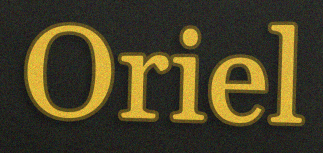
Oriel